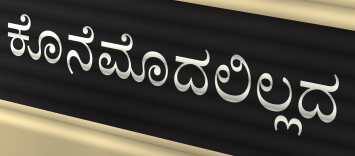
ಕೊನೆಮೊದಲಿಲ್ಲದ